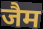
जैम